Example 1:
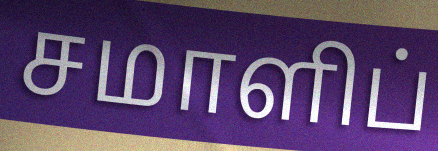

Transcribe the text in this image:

சமாளிப்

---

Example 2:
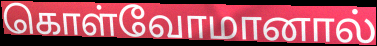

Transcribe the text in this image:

கொள்வோமானால்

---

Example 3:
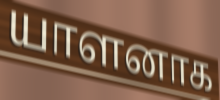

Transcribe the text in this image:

யாளனாக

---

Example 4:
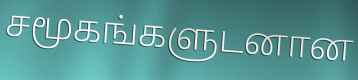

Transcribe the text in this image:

சமூகங்களுடனான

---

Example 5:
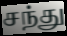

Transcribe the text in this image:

சந்து